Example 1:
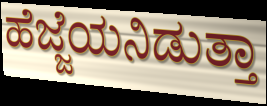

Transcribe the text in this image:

ಹೆಜ್ಜೆಯನಿಡುತ್ತಾ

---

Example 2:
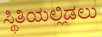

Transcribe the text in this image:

ಸ್ಥಿತಿಯಲ್ಲಿಡಲು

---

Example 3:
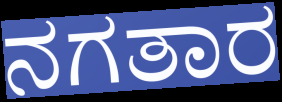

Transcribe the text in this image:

ನಗತಾರ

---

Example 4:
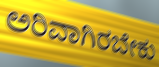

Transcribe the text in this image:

ಅರಿವಾಗಿರಬೇಕು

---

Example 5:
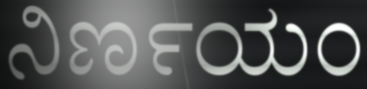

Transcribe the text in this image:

ನಿರ್ಣಯಂ